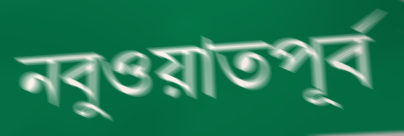
নবুওয়াতপূর্ব